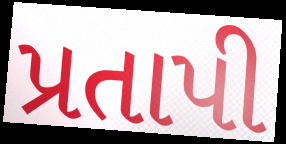
પ્રતાપી